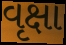
વૃક્ષા